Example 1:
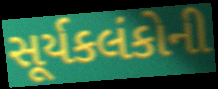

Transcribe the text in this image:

સૂર્યકલંકોની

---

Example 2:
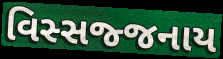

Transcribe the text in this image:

વિસ્સજ્જનાય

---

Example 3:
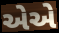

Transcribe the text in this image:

એએ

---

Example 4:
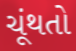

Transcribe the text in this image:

ચૂંથતો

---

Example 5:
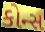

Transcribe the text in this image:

કોન્સ